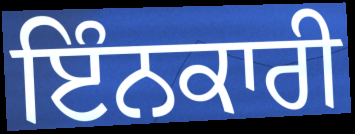
ਇੰਨਕਾਰੀ